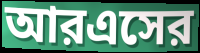
আরএসের